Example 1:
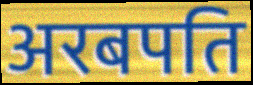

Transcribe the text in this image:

अरबपति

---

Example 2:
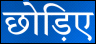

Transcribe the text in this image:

छोड़िए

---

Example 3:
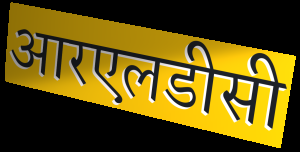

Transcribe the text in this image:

आरएलडीसी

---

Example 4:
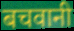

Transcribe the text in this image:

बचवानी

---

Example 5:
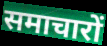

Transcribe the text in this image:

समाचारों